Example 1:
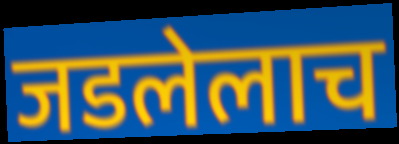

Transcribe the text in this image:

जडलेलाच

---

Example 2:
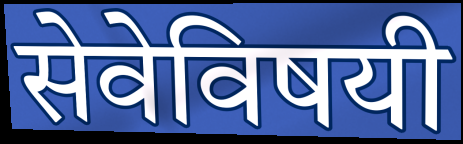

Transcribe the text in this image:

सेवेविषयी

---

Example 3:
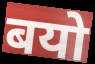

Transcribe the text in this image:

बयो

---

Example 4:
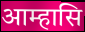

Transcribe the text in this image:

आम्हासि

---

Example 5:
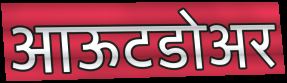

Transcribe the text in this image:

आऊटडोअर